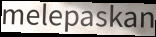
melepaskan